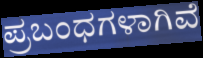
ಪ್ರಬಂಧಗಳಾಗಿವೆ